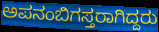
ಅಪನಂಬಿಗಸ್ತರಾಗಿದ್ದರು